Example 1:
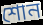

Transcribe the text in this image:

শোন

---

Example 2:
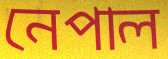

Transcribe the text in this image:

নেপাল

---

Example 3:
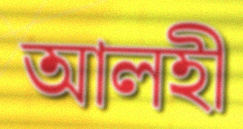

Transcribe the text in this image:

আলহী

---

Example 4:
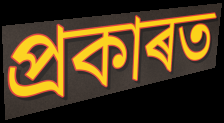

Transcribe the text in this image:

প্ৰকাৰত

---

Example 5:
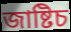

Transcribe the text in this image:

জাষ্টিচ